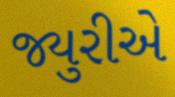
જ્યુરીએ